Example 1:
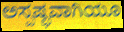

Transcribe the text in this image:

ಅಸ್ಪಷ್ಟವಾಗಿಯೂ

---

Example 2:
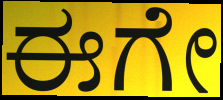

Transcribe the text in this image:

ಈಗೇ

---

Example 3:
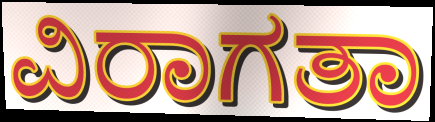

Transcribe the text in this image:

ವಿರಾಗತಾ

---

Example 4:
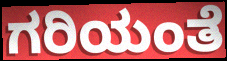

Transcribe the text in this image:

ಗರಿಯಂತೆ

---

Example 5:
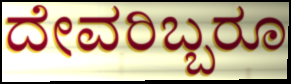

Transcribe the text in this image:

ದೇವರಿಬ್ಬರೂ